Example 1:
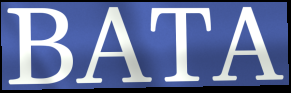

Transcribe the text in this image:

BATA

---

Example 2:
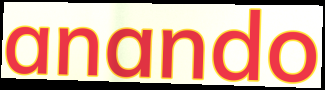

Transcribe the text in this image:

anando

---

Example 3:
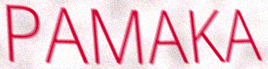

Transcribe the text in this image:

PAMAKA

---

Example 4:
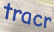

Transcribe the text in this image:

tracr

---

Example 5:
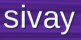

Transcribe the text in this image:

sivay